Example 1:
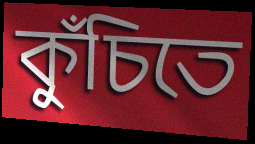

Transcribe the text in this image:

কুঁচিতে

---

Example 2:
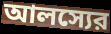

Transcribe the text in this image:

আলস্যের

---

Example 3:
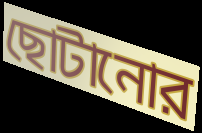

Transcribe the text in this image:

ছোটানোর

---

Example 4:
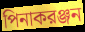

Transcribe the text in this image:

পিনাকরঞ্জন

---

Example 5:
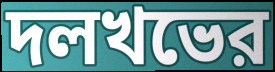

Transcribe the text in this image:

দলখভের